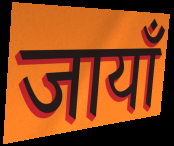
जायाँ